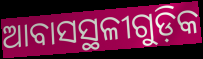
ଆବାସସ୍ଥଳୀଗୁଡ଼ିକ